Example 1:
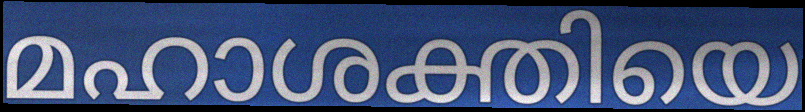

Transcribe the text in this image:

മഹാശക്തിയെ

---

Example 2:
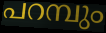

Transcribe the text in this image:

പറമ്പും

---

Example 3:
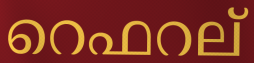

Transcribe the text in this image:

റെഫറല്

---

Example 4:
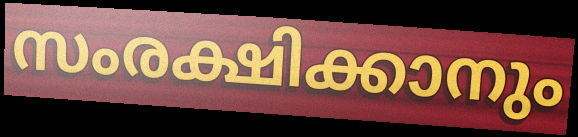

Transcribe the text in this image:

സംരക്ഷിക്കാനും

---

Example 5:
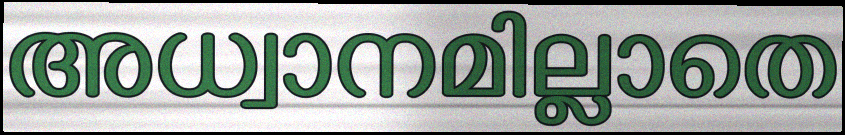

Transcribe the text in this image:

അധ്വാനമില്ലാതെ